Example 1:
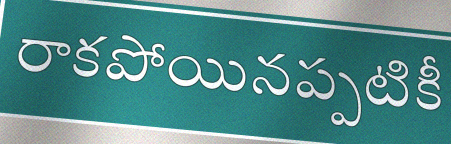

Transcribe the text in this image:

రాకపోయినప్పటికీ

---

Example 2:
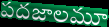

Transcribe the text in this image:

పదజాలమూ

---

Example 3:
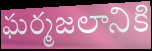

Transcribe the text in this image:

ఘర్మజలానికి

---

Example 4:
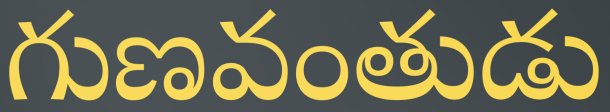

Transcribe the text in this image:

గుణవంతుడు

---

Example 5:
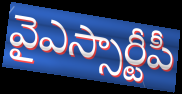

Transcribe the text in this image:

వైఎస్సార్టీపీ